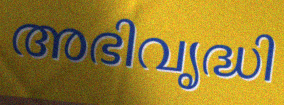
അഭിവൃദ്ധി